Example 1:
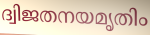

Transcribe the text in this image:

ദ്വിജതനയമൃതിം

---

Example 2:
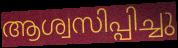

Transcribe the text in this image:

ആശ്വസിപ്പിച്ചു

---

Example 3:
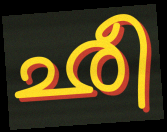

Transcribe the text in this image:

ഛീ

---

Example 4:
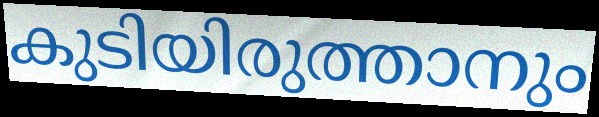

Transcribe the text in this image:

കുടിയിരുത്താനും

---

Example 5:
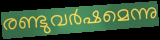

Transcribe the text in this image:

രണ്ടുവർഷമെന്നു